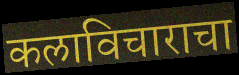
कलाविचाराचा